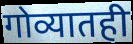
गोव्यातही